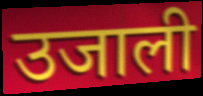
उजाली